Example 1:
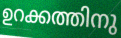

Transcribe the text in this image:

ഉറക്കത്തിനു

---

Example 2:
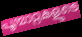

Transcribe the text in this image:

പൂമ്പാറ്റകളുടെ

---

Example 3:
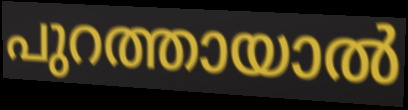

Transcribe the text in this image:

പുറത്തായാൽ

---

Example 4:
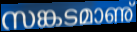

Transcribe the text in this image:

സങ്കടമാണു്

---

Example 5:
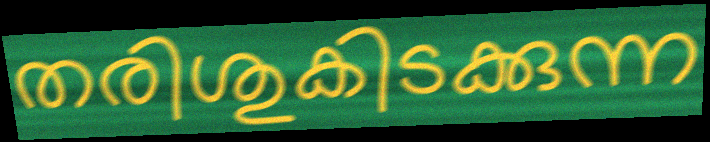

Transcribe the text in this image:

തരിശുകിടക്കുന്ന